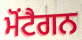
ਮੋਂਟੈਗਨ